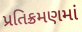
પ્રતિક્રમણમાં